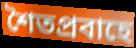
শৈতপ্রবাহে